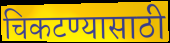
चिकटण्यासाठी